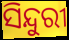
ସିନ୍ଦୁରୀ